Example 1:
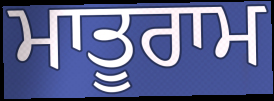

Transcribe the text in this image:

ਮਾਤੂਰਾਮ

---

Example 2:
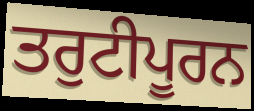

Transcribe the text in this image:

ਤਰੁਟੀਪੂਰਨ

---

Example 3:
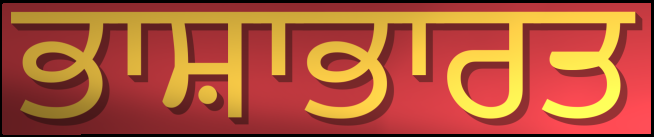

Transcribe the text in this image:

ਭਾਸ਼ਾਭਾਰਤ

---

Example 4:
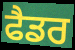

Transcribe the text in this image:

ਫੈਡਰ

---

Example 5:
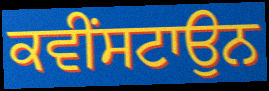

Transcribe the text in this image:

ਕਵੀਂਸਟਾਉਨ